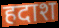
हदाश